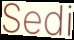
Sedi